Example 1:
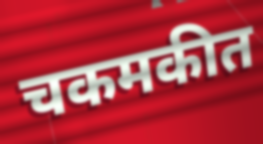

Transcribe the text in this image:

चकमकीत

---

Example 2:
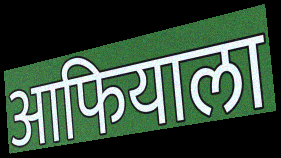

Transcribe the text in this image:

आफियाला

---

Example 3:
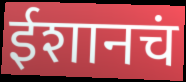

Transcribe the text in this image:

ईशानचं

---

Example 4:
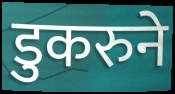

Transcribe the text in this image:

डुकरुने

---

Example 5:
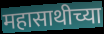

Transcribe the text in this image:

महासाथीच्या